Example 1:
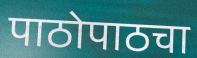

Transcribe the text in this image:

पाठोपाठचा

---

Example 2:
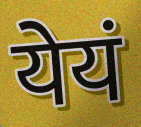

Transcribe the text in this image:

येयं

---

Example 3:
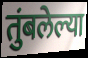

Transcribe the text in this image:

तुंबलेल्या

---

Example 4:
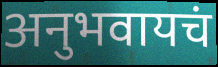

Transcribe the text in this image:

अनुभवायचं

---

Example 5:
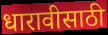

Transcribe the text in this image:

धारावीसाठी